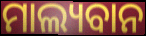
ମାଲ୍ୟବାନ